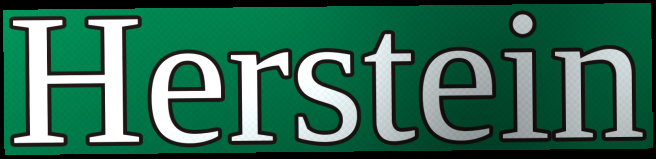
Herstein